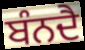
ਬੰਨਦੈ